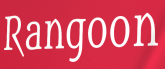
Rangoon